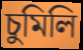
চুমিলি